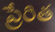
ప్రేరిత